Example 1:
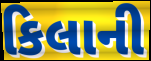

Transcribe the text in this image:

કિલાની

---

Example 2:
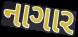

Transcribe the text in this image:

નાગાર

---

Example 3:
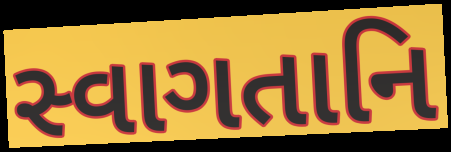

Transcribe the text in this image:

સ્વાગતાનિ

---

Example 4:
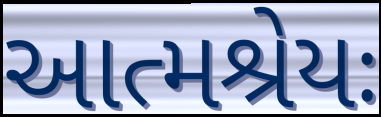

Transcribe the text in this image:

આત્મશ્રેયઃ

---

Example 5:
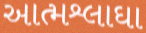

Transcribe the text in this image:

આત્મશ્લાઘા